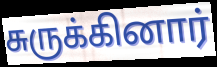
சுருக்கினார்